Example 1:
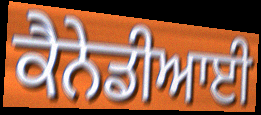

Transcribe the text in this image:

ਕੈਨੇਡੀਆਈ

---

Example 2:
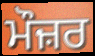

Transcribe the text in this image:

ਮੌਜ਼ਰ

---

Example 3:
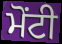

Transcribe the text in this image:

ਮੋਂਟੀ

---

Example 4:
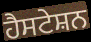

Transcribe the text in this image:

ਹੈਸਟੇਸ਼ਨ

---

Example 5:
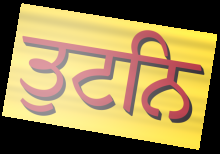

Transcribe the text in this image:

ਤੁਟਨਿ